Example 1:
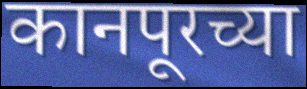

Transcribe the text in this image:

कानपूरच्या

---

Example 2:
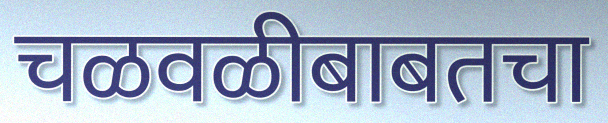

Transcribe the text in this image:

चळवळीबाबतचा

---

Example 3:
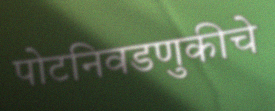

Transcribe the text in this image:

पोटनिवडणुकीचे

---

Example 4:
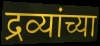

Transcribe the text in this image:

द्रव्यांच्या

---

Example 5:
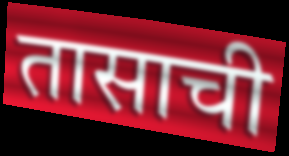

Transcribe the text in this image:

तासाची